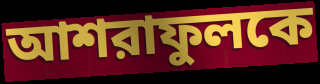
আশরাফুলকে